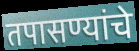
तपासण्यांचे